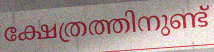
ക്ഷേത്രത്തിനുണ്ട്